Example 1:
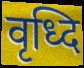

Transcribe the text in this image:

वृध्दि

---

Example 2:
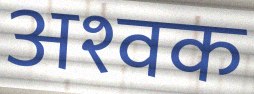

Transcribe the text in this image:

अश्वक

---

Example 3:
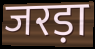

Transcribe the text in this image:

जरड़ा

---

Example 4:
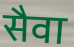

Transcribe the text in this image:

सैवा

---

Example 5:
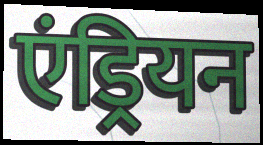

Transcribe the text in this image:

एंड्रियन